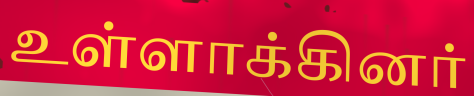
உள்ளாக்கினர்